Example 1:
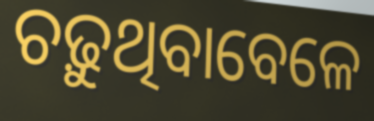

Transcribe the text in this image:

ଚଢ଼ୁଥିବାବେଳେ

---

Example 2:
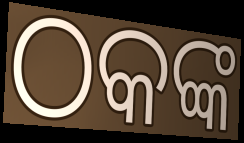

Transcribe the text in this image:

ଠକଙ୍କ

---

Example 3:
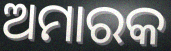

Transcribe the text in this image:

ଅମାରକ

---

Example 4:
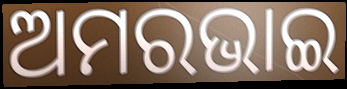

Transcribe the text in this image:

ଅମରଭାଇ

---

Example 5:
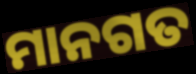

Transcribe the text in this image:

ମାନଗତ